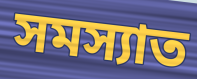
সমস্যাত